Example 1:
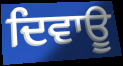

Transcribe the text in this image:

ਦਿਵਾਊ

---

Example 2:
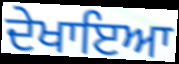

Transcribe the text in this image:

ਦੇਖਾਇਆ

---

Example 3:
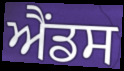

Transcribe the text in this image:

ਐਂਡਸ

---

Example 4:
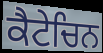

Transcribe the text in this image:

ਕੈਟੇਚਿਨ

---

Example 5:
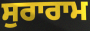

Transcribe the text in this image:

ਸੁਰਾਰਾਮ